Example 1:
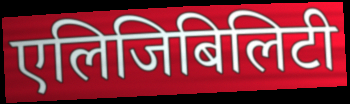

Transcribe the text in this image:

एलिजिबिलिटी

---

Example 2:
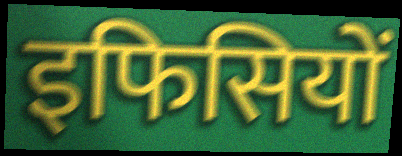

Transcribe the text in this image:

इफिसियों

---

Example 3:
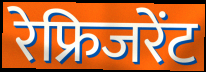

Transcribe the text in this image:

रेफ्रिजरेंट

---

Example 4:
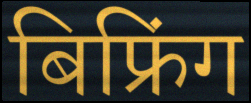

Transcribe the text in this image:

बिफ्रिंग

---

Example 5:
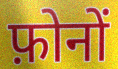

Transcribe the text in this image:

फ़ोनों